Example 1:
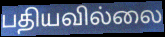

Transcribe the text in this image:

பதியவில்லை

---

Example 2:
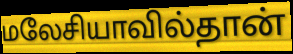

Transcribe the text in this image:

மலேசியாவில்தான்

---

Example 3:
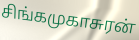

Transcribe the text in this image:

சிங்கமுகாசுரன்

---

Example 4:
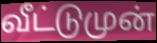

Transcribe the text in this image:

வீட்டுமுன்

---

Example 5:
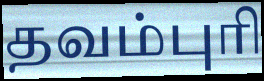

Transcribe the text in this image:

தவம்புரி